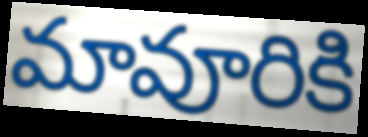
మావూరికి